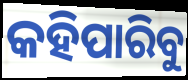
କହିପାରିବୁ